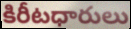
కిరీటధారులు